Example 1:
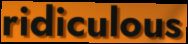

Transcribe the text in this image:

ridiculous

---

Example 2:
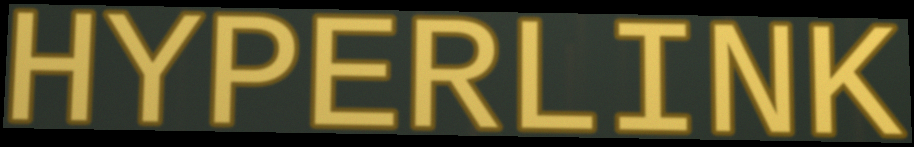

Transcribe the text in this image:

HYPERLINK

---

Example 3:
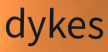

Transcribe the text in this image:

dykes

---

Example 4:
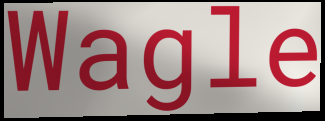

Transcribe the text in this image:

Wagle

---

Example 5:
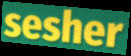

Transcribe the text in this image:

sesher